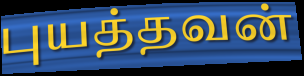
புயத்தவன்